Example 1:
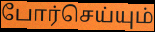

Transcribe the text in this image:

போர்செய்யும்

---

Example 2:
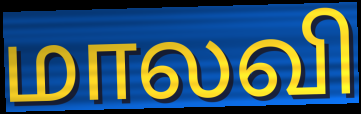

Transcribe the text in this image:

மாலவி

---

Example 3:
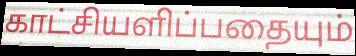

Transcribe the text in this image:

காட்சியளிப்பதையும்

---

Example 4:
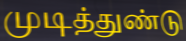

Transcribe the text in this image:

முடித்துண்டு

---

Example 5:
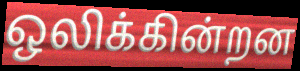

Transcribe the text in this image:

ஒலிக்கின்றன